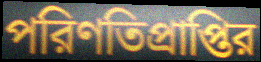
পরিণতিপ্রাপ্তির